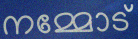
നമ്മോട്